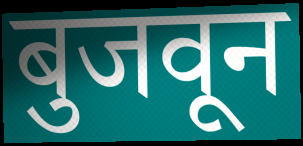
बुजवून